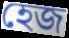
হেজ